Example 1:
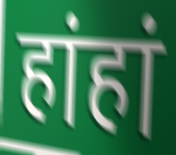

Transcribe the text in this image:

हांहां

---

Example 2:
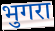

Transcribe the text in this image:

भुगरा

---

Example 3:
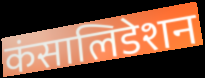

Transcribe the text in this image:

कंसालिडेशन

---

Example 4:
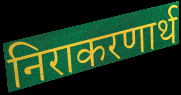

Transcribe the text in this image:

निराकरणार्थ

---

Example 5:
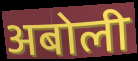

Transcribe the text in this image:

अबोली